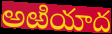
అఱియాద